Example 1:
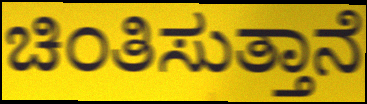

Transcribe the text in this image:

ಚಿಂತಿಸುತ್ತಾನೆ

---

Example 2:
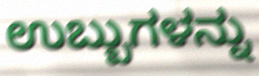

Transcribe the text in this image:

ಉಬ್ಬುಗಳನ್ನು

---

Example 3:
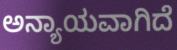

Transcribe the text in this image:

ಅನ್ಯಾಯವಾಗಿದೆ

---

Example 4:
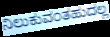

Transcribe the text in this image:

ನಿಲುಕುವಂತಹುದಲ್ಲ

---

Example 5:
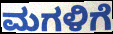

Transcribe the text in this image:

ಮಗಳಿಗೆ